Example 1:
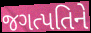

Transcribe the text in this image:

જગત્પતિને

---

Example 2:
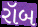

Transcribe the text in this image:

રૉબ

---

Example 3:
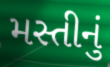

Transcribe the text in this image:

મસ્તીનું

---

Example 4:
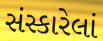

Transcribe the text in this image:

સંસ્કારેલાં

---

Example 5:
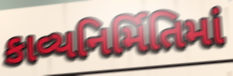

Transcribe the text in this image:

કાવ્યનિર્મિતિમાં